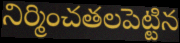
నిర్మించతలపెట్టిన